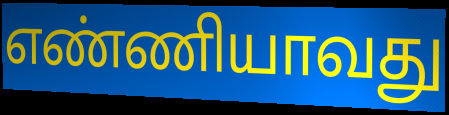
எண்ணியாவது